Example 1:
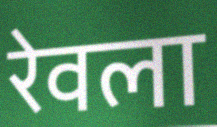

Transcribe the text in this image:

रेवला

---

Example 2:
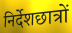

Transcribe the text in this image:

निर्देशछात्रों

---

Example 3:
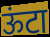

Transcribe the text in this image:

ऊंटा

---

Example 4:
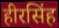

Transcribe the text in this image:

हीरसिंह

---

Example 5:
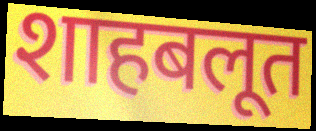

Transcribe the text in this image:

शाहबलूत